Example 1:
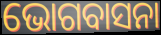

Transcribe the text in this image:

ଭୋଗବାସନା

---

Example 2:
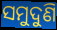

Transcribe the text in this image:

ସମୁଦୁଣି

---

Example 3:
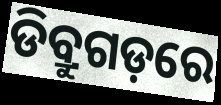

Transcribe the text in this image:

ଡିବ୍ରୁଗଡ଼ରେ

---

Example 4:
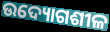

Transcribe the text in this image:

ଉଦ୍ୟୋଗଶୀଳ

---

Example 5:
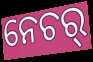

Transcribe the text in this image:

ନେଚର୍